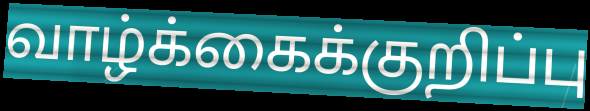
வாழ்க்கைக்குறிப்பு